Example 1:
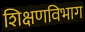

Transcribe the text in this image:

शिक्षणविभाग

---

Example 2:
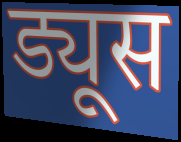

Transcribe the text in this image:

ड्यूस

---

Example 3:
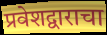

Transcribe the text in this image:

प्रवेशद्वाराचा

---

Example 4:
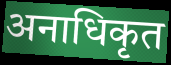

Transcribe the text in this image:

अनाधिकृत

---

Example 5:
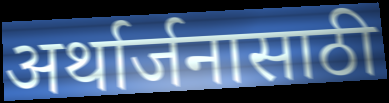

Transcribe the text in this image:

अर्थार्जनासाठी